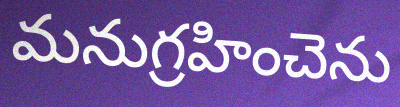
మనుగ్రహించెను